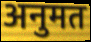
अनुमत